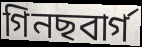
গিনছবাৰ্গ